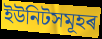
ইউনিটসমূহৰ